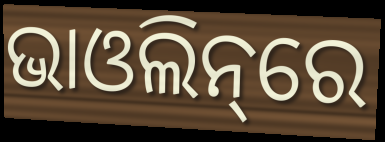
ଭାଓଲିନ୍‌ରେ